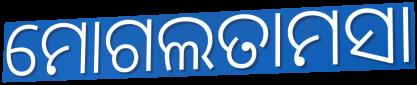
ମୋଗଲତାମସା